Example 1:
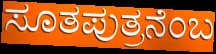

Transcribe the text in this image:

ಸೂತಪುತ್ರನೆಂಬ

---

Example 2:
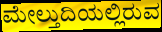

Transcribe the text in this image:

ಮೇಲ್ತುದಿಯಲ್ಲಿರುವ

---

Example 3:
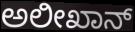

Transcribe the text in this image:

ಅಲೀಖಾನ್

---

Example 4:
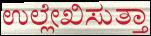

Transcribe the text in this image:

ಉಲ್ಲೇಖಿಸುತ್ತಾ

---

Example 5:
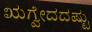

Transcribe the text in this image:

ಋಗ್ವೇದದಷ್ಟು